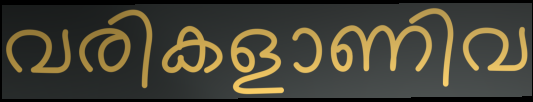
വരികളാണിവ